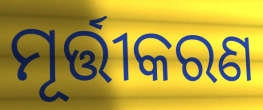
ମୂର୍ତ୍ତୀକରଣ